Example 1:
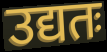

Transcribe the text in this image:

उद्यतः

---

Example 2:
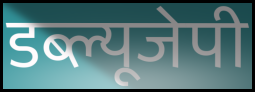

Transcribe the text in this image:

डब्ल्यूजेपी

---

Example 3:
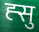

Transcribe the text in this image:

ह्सु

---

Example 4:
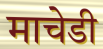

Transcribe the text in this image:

माचेडी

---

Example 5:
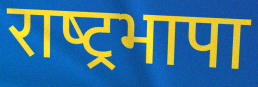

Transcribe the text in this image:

राष्ट्रभापा